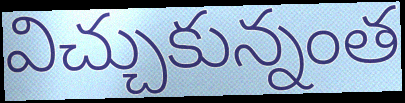
విచ్చుకున్నంత